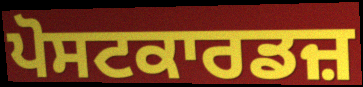
ਪੋਸਟਕਾਰਡਜ਼